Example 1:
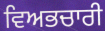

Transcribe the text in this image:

ਵਿਅਭਚਾਰੀ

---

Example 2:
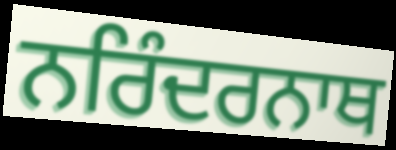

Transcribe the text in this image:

ਨਰਿੰਦਰਨਾਥ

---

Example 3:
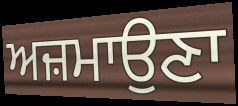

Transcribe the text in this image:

ਅਜ਼ਮਾਉਣਾ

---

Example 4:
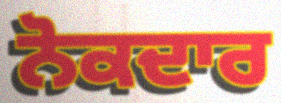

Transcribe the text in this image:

ਨੋਕਦਾਰ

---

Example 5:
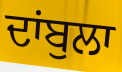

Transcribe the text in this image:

ਦਾਂਬੁਲਾ